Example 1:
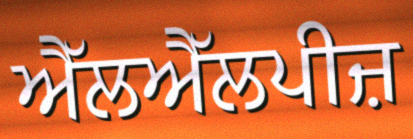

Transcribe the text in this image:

ਐੱਲਐੱਲਪੀਜ਼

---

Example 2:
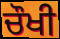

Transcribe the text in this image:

ਚੌਖੀ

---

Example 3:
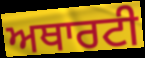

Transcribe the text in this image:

ਅਥਾਰਟੀ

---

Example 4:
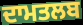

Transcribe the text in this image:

ਦਾਮਤਲਬ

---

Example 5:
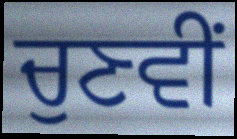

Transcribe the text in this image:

ਚੁਣਵੀਂ